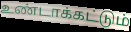
உண்டாக்கட்டும்